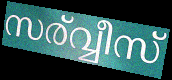
സര്വ്വീസ്